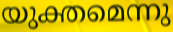
യുക്തമെന്നു